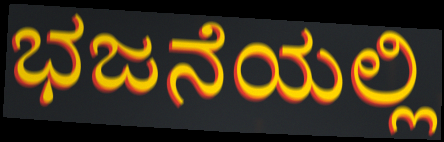
ಭಜನೆಯಲ್ಲಿ